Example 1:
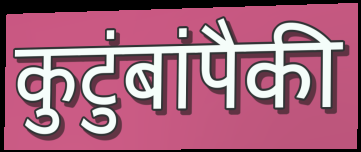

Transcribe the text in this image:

कुटुंबांपैकी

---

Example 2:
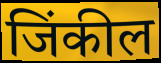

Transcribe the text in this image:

जिंकील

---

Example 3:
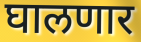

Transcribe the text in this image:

घालणार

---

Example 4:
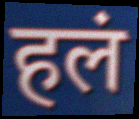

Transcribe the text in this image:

हलं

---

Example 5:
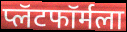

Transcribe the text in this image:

प्लॅटफॉर्मला